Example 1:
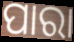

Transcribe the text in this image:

ପାରା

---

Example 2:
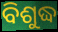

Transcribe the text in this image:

ବିଶୁଦ୍ଧ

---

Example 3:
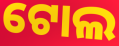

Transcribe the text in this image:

ଟୋଲ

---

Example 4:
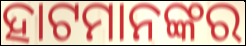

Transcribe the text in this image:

ହାଟମାନଙ୍କର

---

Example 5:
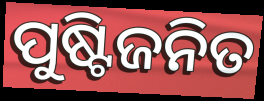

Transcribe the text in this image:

ପୁଷ୍ଟିଜନିତ